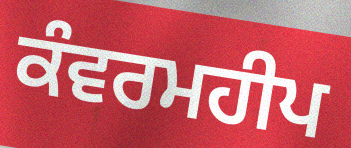
ਕੰਵਰਮਹੀਪ